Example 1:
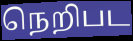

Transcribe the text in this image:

நெறிபட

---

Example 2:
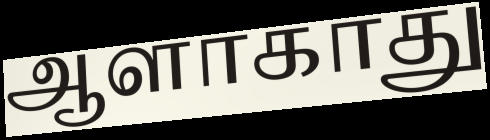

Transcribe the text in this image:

ஆளாகாது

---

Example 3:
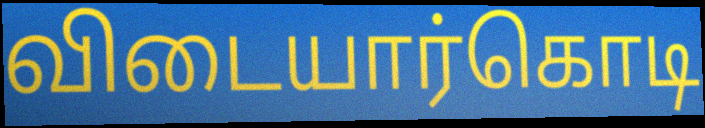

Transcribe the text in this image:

விடையார்கொடி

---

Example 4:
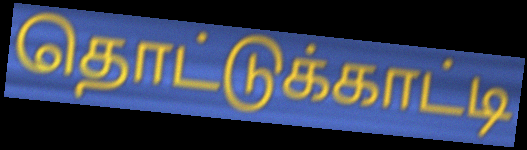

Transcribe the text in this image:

தொட்டுக்காட்டி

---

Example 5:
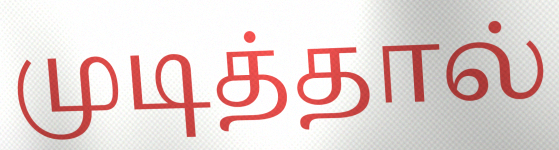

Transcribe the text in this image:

முடித்தால்